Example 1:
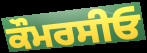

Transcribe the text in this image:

ਕੌਮਰਸੀਓ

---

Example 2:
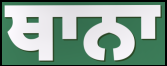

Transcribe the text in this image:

ਥਾਨਾ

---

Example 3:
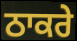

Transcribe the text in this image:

ਠਾਕਰੇ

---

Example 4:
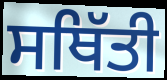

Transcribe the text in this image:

ਸਥਿੱਤੀ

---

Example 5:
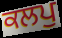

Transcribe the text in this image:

ਕਲਪੁ